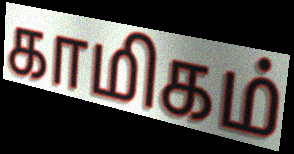
காமிகம்